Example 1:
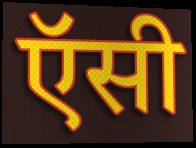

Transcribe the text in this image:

ऍसी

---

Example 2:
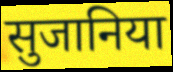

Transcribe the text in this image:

सुजानिया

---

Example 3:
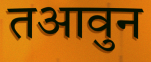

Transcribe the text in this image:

तआवुन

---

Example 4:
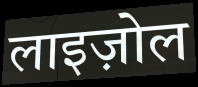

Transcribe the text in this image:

लाइज़ोल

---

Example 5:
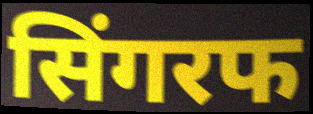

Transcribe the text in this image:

सिंगरफ